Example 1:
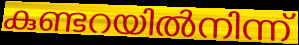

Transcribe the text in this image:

കുണ്ടറയിൽനിന്ന്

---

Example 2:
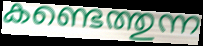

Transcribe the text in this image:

കണ്ടെത്തുന്ന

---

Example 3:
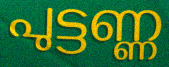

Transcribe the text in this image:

പുട്ടണ്ണ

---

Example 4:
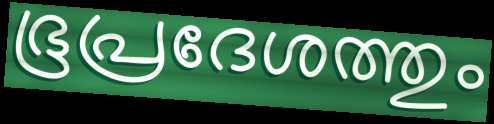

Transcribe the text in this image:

ഭൂപ്രദേശത്തും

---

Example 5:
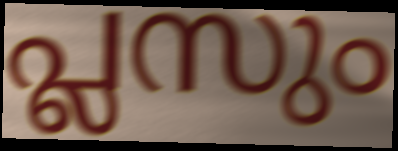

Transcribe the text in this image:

പ്ലസും